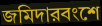
জমিদারবংশে